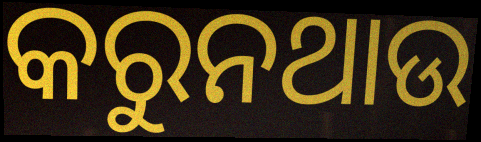
କରୁନଥାଉ